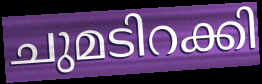
ചുമടിറക്കി